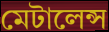
মেটালেন্স